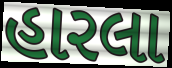
હારલા